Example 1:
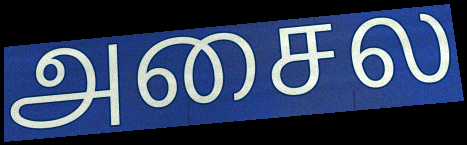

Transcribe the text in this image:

அசைல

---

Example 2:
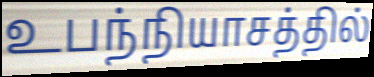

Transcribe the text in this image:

உபந்நியாசத்தில்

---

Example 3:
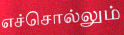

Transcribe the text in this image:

எச்சொல்லும்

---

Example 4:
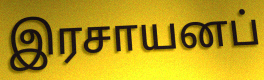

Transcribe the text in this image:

இரசாயனப்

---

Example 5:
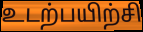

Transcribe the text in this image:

உடற்பயிற்சி